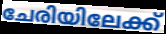
ചേരിയിലേക്ക്